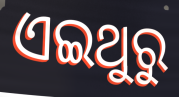
ଏଇଥୁରୁ